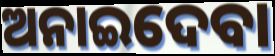
ଅନାଇଦେବା